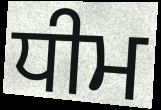
ਧੀਮ